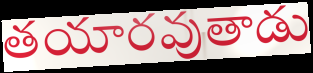
తయారవుతాడు